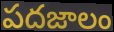
పదజాలం